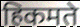
हिकमते